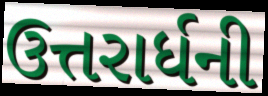
ઉત્તરાર્ધની